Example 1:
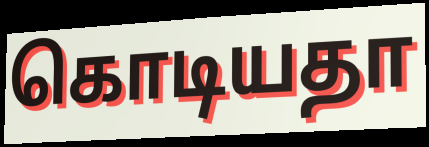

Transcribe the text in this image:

கொடியதா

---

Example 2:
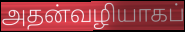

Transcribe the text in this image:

அதன்வழியாகப்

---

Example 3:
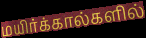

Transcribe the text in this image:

மயிர்க்கால்களில்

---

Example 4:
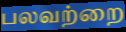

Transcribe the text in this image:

பலவற்றை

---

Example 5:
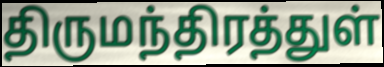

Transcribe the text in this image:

திருமந்திரத்துள்